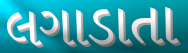
લગાડાતા